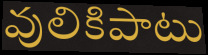
వులికిపాటు